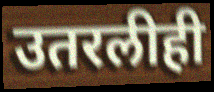
उतरलीही